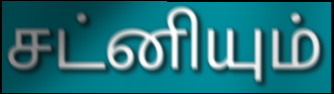
சட்னியும்